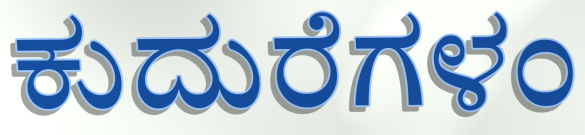
ಕುದುರೆಗಳಂ